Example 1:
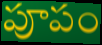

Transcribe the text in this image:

పూపం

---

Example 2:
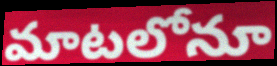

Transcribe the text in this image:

మాటలోనూ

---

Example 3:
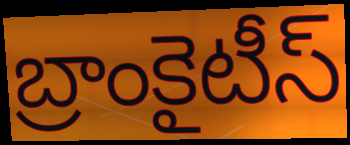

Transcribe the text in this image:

బ్రాంకైటీస్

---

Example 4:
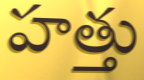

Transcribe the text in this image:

హత్తు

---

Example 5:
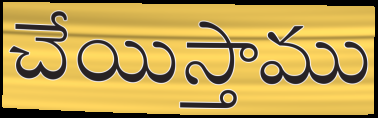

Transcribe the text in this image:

చేయిస్తాము